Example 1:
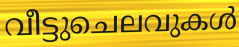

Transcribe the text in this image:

വീട്ടുചെലവുകൾ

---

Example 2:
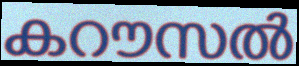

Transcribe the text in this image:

കറൗസൽ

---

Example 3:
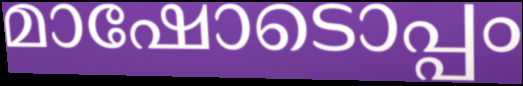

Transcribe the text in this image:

മാഷോടൊപ്പം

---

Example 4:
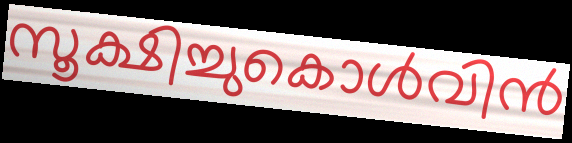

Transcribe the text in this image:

സൂക്ഷിച്ചുകൊൾവിൻ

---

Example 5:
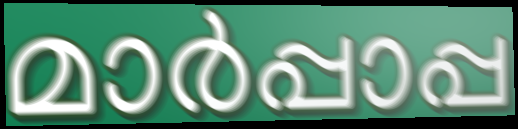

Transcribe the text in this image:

മാർപ്പാപ്പ